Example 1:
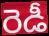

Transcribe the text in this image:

రెడీ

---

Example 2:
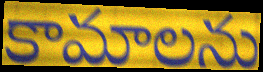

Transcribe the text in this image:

కామాలను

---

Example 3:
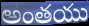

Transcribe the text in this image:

అంతయు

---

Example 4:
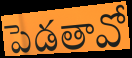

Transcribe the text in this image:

పెడతావో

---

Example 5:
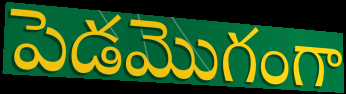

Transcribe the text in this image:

పెడమొగంగా